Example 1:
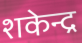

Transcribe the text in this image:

शकेन्द्र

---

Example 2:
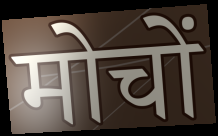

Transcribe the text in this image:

मोचों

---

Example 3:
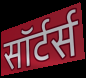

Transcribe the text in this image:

सॉर्टर्स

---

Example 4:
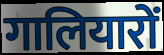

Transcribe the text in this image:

गालियारों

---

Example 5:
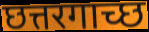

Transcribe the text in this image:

छत्तरगाच्छ